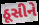
ઠૂસીને